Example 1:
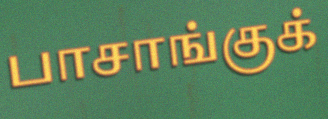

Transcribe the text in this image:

பாசாங்குக்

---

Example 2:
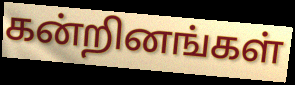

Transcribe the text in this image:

கன்றினங்கள்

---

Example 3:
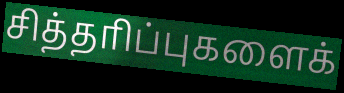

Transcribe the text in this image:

சித்தரிப்புகளைக்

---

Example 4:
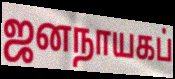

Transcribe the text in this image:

ஜனநாயகப்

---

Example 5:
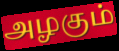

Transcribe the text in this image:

அழகும்